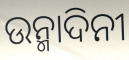
ଉନ୍ମାଦିନୀ